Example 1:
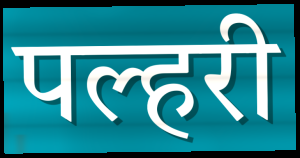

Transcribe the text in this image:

पल्हरी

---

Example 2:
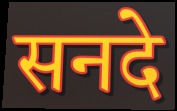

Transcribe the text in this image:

सनदे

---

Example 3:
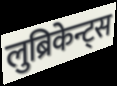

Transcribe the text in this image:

लुब्रिकेन्ट्स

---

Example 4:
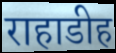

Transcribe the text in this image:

राहाडीह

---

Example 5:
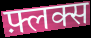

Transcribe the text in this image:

फ़्लक्स